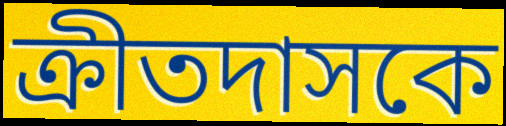
ক্রীতদাসকে